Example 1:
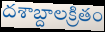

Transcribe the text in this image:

దశాబ్దాలక్రితం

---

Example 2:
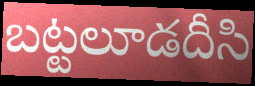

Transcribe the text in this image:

బట్టలూడదీసి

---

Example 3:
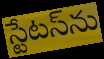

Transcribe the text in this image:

స్టేటస్‌ను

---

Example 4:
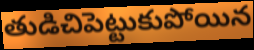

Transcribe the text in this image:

తుడిచిపెట్టుకుపోయిన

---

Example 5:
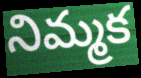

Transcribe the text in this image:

నిమ్మక